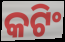
କଟିଂ